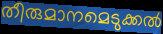
തീരുമാനമെടുക്കൽ